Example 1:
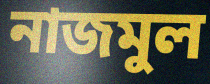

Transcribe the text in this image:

নাজমুল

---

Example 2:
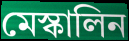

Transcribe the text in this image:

মেস্কালিন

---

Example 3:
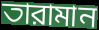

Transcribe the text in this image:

তারামান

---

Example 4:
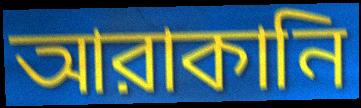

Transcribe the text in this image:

আরাকানি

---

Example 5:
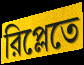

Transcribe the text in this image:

রিপ্লেতে